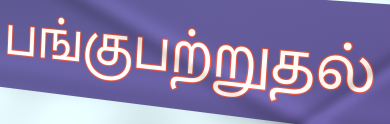
பங்குபற்றுதல்